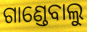
ଗାଣ୍ଡେବାଲୁ